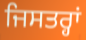
ਜਿਸਤਰ੍ਹਾਂ